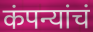
कंपन्यांचं